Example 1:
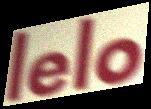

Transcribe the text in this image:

lelo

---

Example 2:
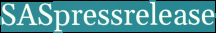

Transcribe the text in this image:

SASpressrelease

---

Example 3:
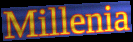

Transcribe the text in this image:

Millenia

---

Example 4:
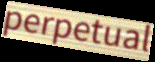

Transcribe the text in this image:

perpetual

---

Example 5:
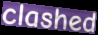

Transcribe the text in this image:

clashed